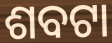
ଶବଟା